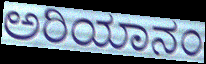
ಅರಿಯಾನಂ